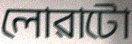
লোৱাটো